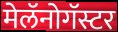
मेलॅनोगॅस्टर